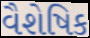
વૈશેષિક